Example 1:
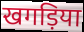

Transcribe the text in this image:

खगड़िया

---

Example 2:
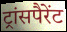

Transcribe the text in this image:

ट्रांसपैरेंट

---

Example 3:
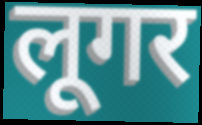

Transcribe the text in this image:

लूगर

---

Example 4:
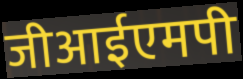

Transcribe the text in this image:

जीआईएमपी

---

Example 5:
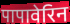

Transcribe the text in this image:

पापावेरिन